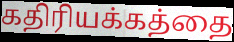
கதிரியக்கத்தை